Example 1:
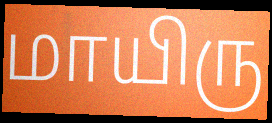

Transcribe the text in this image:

மாயிரு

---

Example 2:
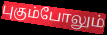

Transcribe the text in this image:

புகும்போலும்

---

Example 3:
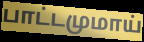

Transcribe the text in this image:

பாட்டமுமாய்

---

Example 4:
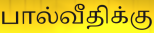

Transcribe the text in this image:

பால்வீதிக்கு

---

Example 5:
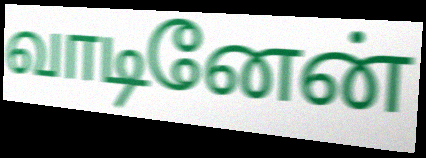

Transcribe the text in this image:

வாடினேன்